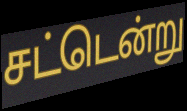
சட்டென்று